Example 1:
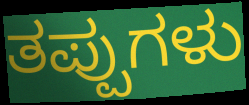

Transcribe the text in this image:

ತಪ್ಪುಗಳು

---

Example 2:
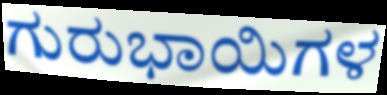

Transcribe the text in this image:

ಗುರುಭಾಯಿಗಳ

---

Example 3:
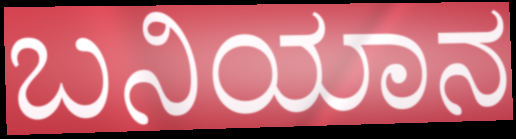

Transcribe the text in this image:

ಬನಿಯಾನ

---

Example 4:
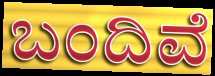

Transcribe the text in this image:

ಬಂದಿವೆ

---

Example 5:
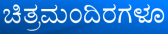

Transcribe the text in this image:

ಚಿತ್ರಮಂದಿರಗಳೂ